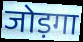
जोड़गा